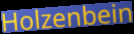
Holzenbein